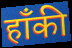
हॉंकी